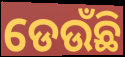
ଡେଉଁଛି